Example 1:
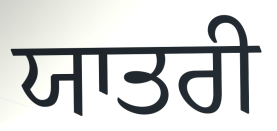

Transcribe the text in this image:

ਯਾਤਰੀ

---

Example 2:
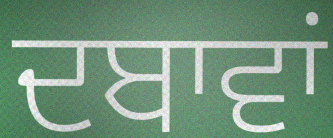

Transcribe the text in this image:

ਦਬਾਵਾਂ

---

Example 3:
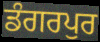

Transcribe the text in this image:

ਡੰਗਰਪੁਰ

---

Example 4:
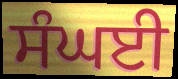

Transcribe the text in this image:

ਸੰਘਈ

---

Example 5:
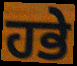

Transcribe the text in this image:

ਹਭੇ